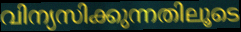
വിന്യസിക്കുന്നതിലൂടെ